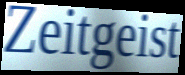
Zeitgeist